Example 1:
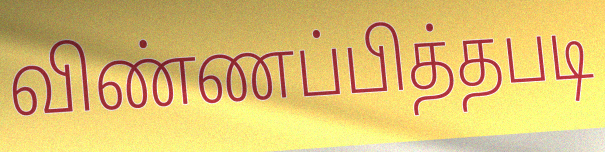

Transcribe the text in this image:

விண்ணப்பித்தபடி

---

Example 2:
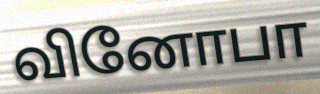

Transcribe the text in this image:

வினோபா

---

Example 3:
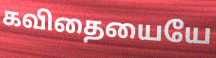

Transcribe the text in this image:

கவிதையையே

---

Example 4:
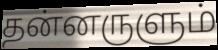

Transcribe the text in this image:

தன்னருளும்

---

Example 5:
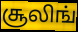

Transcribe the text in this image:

சூலிங்